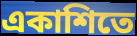
একাশিতে